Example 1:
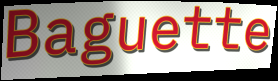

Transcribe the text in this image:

Baguette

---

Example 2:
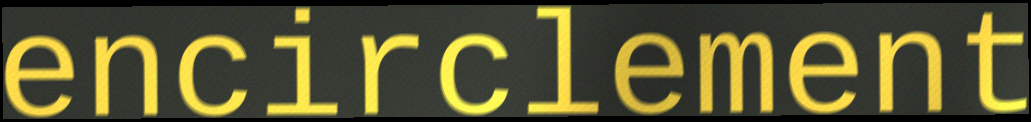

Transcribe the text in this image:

encirclement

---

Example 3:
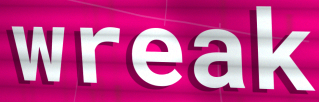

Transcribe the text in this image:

wreak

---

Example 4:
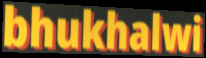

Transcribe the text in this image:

bhukhalwi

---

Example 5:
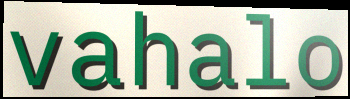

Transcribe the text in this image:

vahalo